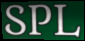
SPL